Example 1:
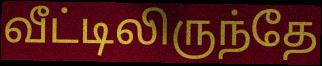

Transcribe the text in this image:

வீட்டிலிருந்தே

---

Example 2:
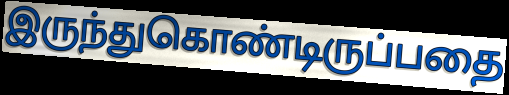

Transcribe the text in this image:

இருந்துகொண்டிருப்பதை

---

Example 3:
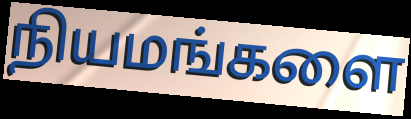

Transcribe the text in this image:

நியமங்களை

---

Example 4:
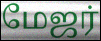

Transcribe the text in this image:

மேஜர்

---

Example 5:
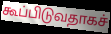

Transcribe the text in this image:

கூப்பிடுவதாகச்